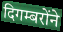
दिगम्बरोंने